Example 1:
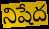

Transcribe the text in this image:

నిషేద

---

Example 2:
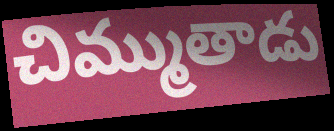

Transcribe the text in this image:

చిమ్ముతాడు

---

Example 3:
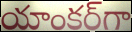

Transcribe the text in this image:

యాంకర్‌గా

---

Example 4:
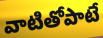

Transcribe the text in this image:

వాటితోపాటే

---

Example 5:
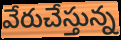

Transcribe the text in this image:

వేరుచేస్తున్న